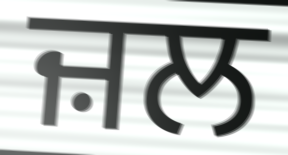
ਜ਼ਲ